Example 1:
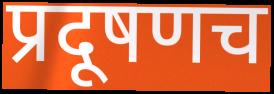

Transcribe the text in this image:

प्रदूषणच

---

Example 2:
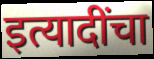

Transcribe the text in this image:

इत्यादींचा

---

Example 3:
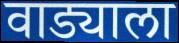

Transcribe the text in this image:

वाड्याला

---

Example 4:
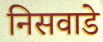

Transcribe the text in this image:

निसवाडे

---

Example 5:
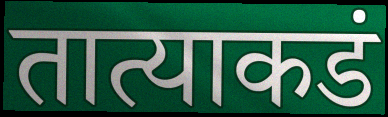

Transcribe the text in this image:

तात्याकडं